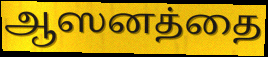
ஆஸனத்தை